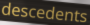
descedents